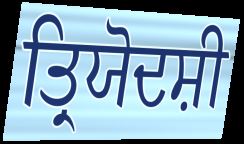
ਤ੍ਰਿਯੋਦਸ਼ੀ